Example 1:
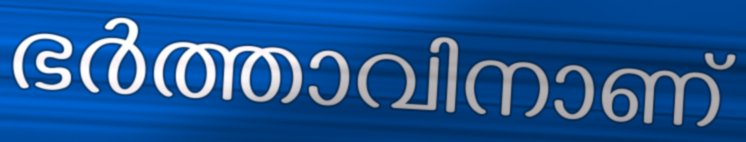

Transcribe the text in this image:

ഭർത്താവിനാണ്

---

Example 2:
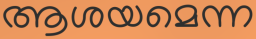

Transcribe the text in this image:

ആശയമെന്ന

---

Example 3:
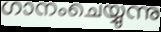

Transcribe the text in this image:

ഗാനംചെയ്യുന്നു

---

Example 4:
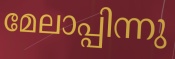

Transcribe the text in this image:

മേലാപ്പിന്നു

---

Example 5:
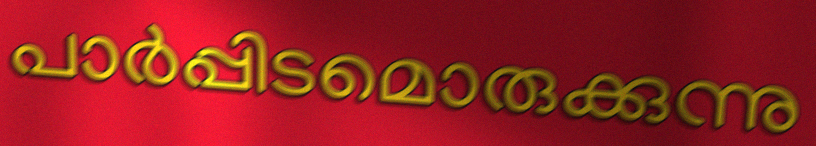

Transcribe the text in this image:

പാർപ്പിടമൊരുക്കുന്നു